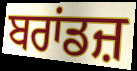
ਬਰਾਂਡਜ਼